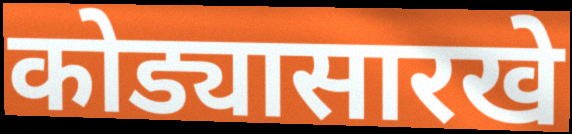
कोड्यासारखे